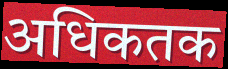
अधिकतक